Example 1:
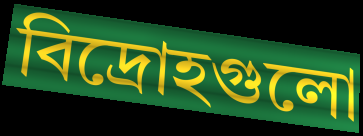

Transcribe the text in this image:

বিদ্রোহগুলো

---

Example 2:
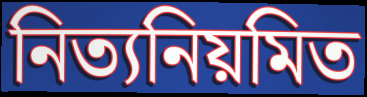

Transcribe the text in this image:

নিত্যনিয়মিত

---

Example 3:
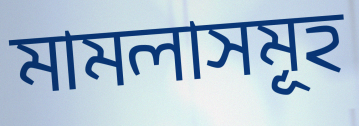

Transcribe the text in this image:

মামলাসমূহ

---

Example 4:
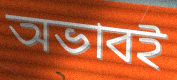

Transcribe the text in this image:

অভাবই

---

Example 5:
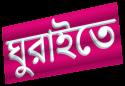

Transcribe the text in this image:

ঘুরাইতে